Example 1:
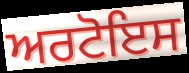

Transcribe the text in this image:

ਅਰਟੋਇਸ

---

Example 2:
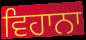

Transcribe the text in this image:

ਵਿਹਾਨਾ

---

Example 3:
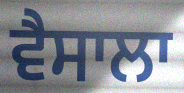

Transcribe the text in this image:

ਵੈਸਾਲਾ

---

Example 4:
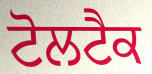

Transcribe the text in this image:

ਟੋਲਟੈਕ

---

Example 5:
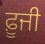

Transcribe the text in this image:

ਫ਼ੂਜੀ